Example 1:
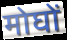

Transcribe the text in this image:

मोघों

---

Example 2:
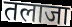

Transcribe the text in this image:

तलाजा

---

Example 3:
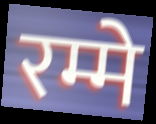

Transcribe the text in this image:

रम्मे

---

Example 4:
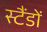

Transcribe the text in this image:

स्टैंडों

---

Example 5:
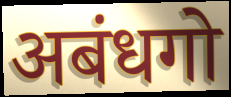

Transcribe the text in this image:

अबंधगो